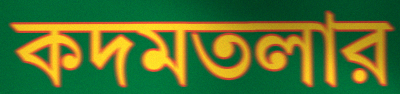
কদমতলার